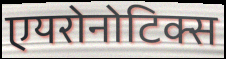
एयरोनोटिक्स